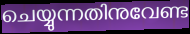
ചെയ്യുന്നതിനുവേണ്ട